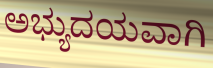
ಅಭ್ಯುದಯವಾಗಿ